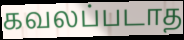
கவலப்படாத